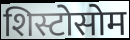
शिस्टोसोम